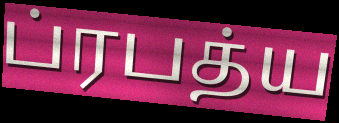
ப்ரபத்ய